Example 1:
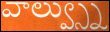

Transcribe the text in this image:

వాల్వ్స్ను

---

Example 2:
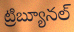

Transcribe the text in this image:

ట్రిబ్యూనల్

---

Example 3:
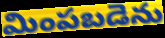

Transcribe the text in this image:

మింపబడెను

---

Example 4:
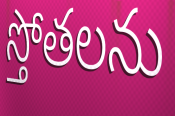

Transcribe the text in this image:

స్తోతలను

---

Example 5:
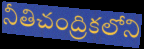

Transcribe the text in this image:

నీతిచంద్రికలోని